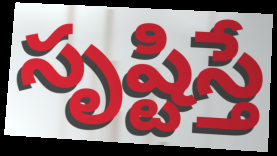
సృష్టిస్తే